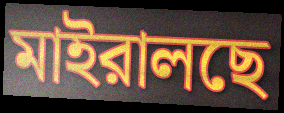
মাইরালছে